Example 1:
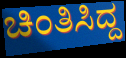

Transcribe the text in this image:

ಚಿಂತಿಸಿದ್ದ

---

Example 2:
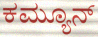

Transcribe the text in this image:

ಕಮ್ಯೂನ್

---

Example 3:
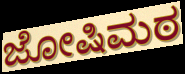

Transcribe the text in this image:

ಜೋಷಿಮಠ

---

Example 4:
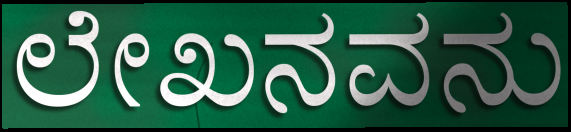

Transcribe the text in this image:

ಲೇಖನವನು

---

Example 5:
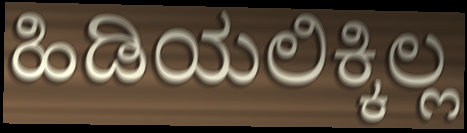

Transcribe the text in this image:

ಹಿಡಿಯಲಿಕ್ಕಿಲ್ಲ